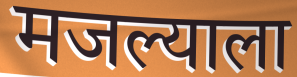
मजल्याला